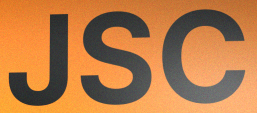
JSC